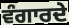
ਵੰਗਾਰਦੇ